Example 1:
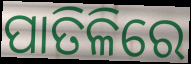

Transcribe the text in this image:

ପାତିଳିରେ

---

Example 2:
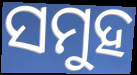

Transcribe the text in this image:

ସମୁହ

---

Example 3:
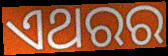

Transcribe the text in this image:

ଏଥରର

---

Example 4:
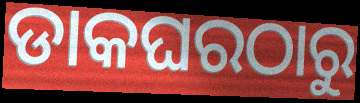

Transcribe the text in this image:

ଡାକଘରଠାରୁ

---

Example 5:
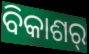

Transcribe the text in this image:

ବିକାଶର୍